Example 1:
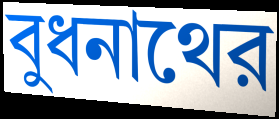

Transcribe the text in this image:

বুধনাথের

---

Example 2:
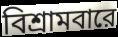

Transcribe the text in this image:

বিশ্রামবারে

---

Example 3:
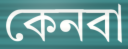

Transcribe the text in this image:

কেনবা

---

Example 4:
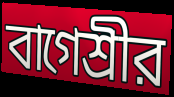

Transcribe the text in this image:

বাগেশ্রীর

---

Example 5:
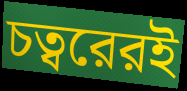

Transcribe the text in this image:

চত্বরেরই